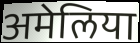
अमेलिया